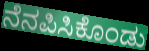
ನೆನಪಿಸಿಕೊಂಡು